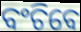
ବଂଚିବେ